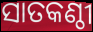
ସାତକଣ୍ଠୀ